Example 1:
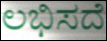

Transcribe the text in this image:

ಲಭಿಸದೆ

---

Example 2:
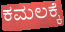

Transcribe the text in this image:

ಕಮಲಕ್ಕೆ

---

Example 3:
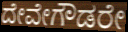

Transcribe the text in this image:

ದೇವೇಗೌಡರೇ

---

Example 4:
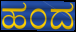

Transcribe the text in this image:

ಹಂದ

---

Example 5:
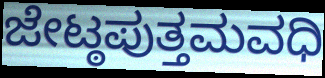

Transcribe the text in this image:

ಜೇಟ್ಠಪುತ್ತಮವಧಿ